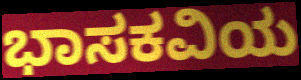
ಭಾಸಕವಿಯ